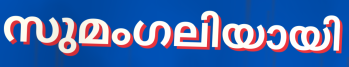
സുമംഗലിയായി